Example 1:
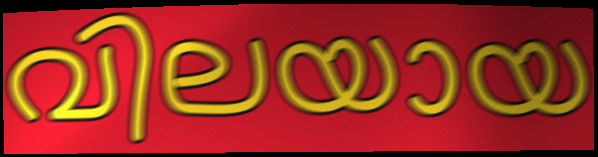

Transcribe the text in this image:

വിലയായ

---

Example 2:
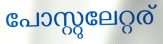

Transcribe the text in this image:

പോസ്റ്റുലേറ്റര്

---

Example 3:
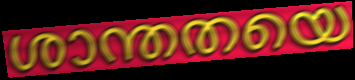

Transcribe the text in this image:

ശാന്തതയെ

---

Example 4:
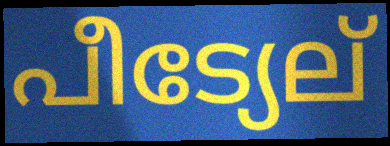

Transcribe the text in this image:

പീട്യേല്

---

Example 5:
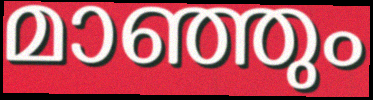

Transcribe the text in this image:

മാഞ്ഞും